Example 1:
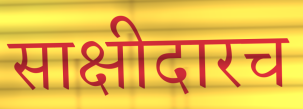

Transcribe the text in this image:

साक्षीदारच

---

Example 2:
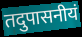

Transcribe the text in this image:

तदुपासनीयं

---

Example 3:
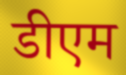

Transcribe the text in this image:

डीएम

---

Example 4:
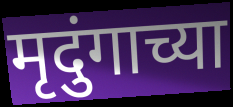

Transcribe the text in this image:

मृदुंगाच्या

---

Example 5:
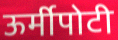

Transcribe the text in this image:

ऊर्मीपोटी